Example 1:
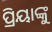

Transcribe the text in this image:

ପ୍ରିୟାଙ୍କୁ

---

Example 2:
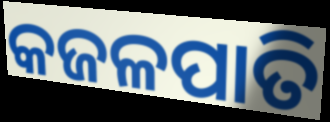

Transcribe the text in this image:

କଜଳପାତି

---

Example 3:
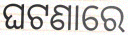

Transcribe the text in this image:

ଘଟଣାରେ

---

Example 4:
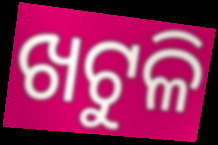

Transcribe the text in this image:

ଖଟୁଳି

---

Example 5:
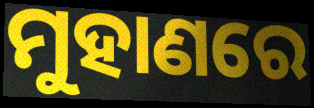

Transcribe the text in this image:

ମୁହାଣରେ